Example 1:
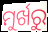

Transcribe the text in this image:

ମୁର୍ଖରୁ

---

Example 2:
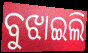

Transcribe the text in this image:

ବୁଝାଇଲି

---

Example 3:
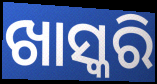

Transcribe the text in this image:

ଖାସ୍କରି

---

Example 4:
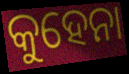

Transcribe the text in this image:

କୁହେନା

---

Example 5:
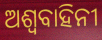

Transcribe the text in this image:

ଅଶ୍ୱବାହିନୀ